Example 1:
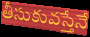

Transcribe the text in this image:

తీసుకువస్తేనే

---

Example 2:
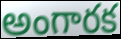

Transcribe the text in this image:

అంగారక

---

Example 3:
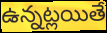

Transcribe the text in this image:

ఉన్నట్లయితే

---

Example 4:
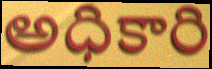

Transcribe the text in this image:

అధికారి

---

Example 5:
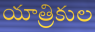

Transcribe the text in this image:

యాత్రికుల